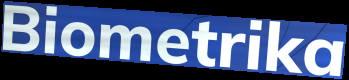
Biometrika